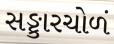
સઙ્કારચોળં